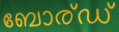
ബോര്ഡ്